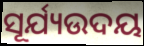
ସୂର୍ଯ୍ୟଉଦୟ